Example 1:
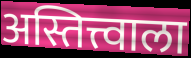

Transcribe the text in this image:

अस्तित्त्वाला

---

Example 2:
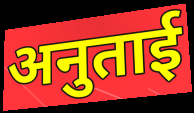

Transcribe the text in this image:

अनुताई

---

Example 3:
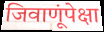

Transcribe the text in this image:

जिवाणूंपेक्षा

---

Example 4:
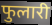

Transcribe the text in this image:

फुलारी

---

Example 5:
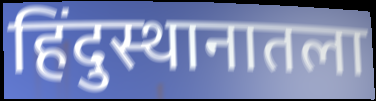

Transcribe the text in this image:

हिंदुस्थानातला